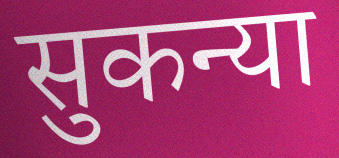
सुकन्या